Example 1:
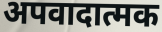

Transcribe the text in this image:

अपवादात्मक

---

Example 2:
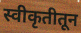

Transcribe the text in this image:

स्वीकृतीतून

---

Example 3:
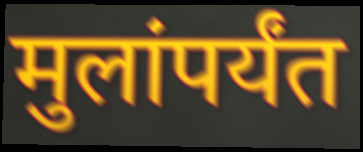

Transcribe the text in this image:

मुलांपर्यंत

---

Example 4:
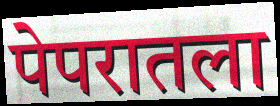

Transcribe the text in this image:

पेपरातला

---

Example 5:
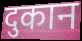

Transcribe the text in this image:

दुकान